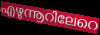
എഴുന്നൂറിലേറെ